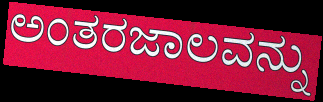
ಅಂತರಜಾಲವನ್ನು